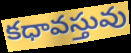
కధావస్తువు